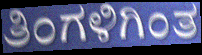
ತಿಂಗಳಿಗಿಂತ